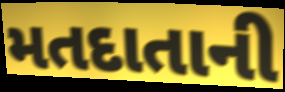
મતદાતાની